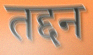
तद्दन